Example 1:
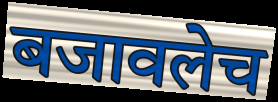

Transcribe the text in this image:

बजावलेच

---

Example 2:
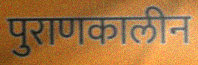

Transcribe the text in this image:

पुराणकालीन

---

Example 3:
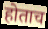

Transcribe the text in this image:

होताच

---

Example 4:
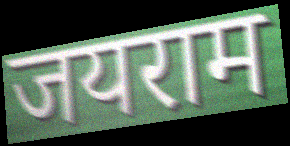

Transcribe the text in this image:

जयराम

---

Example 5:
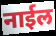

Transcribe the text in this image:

नाईल